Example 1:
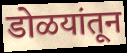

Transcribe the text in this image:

डोळयांतून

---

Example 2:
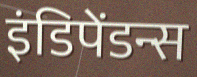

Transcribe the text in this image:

इंडिपेंडन्स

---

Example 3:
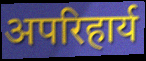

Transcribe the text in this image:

अपरिहार्य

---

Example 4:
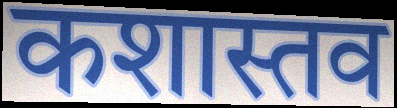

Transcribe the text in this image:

कशास्तव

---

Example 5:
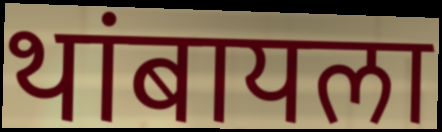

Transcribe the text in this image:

थांबायला